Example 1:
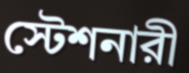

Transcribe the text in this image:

স্টেশনারী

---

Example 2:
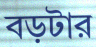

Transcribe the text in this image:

বড়টার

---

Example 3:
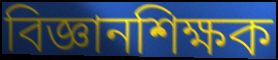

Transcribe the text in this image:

বিজ্ঞানশিক্ষক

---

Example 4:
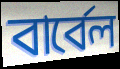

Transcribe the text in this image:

বার্বেল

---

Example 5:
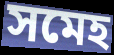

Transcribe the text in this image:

সমেহ